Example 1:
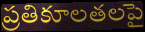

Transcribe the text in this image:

ప్రతికూలతలపై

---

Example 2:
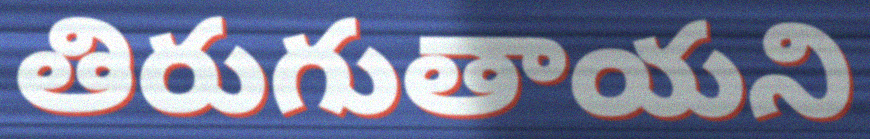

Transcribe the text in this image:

తిరుగుతాయని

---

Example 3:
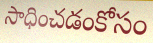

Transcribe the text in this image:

సాధించడంకోసం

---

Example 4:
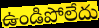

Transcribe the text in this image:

ఉండిపోలేదు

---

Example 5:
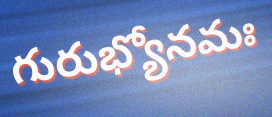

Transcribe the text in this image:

గురుభ్యోనమః